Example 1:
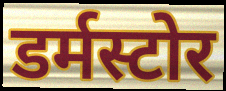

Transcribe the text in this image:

डर्मस्टोर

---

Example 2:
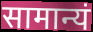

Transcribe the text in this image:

सामान्यं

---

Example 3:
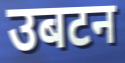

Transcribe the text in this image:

उबटन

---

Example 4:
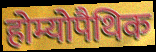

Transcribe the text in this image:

होम्‍योपैथिक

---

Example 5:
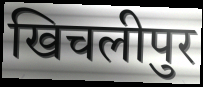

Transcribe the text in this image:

खिचलीपुर